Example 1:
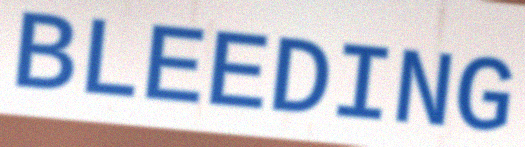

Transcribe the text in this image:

BLEEDING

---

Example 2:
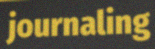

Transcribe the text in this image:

journaling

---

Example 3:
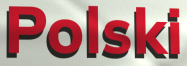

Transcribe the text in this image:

Polski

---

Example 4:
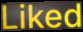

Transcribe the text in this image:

Liked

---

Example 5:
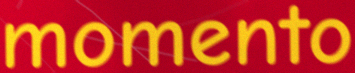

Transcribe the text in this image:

momento